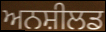
ਅਨਸ਼ੀਲਡ